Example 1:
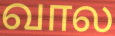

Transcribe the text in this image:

வால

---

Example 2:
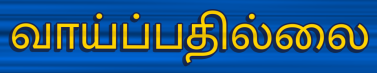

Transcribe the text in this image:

வாய்ப்பதில்லை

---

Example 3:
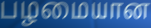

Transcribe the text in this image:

பழமையான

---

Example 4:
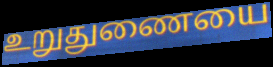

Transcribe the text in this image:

உறுதுணையை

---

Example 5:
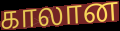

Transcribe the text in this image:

காலான